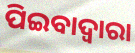
ପିଇବାଦ୍ଵାରା